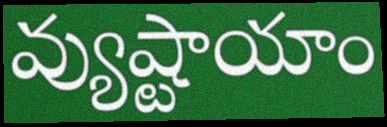
వ్యుష్టాయాం